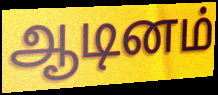
ஆடினம்